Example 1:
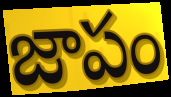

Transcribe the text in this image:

జాపం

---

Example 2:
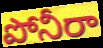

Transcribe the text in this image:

పోనీరా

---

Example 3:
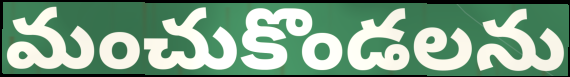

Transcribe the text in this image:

మంచుకొండలను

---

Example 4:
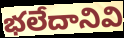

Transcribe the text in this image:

భలేదానివి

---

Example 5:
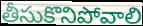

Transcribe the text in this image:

తీసుకొనిపోవాలి